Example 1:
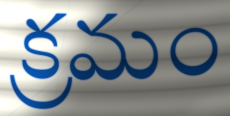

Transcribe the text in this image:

క్రమం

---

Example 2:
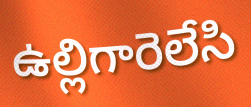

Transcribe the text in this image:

ఉల్లిగారెలేసి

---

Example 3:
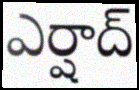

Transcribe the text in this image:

ఎర్షాద్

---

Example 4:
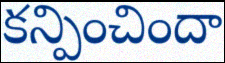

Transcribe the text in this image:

కన్పించిందా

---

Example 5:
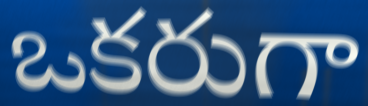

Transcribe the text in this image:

ఒకరుగా